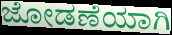
ಜೋಡಣೆಯಾಗಿ